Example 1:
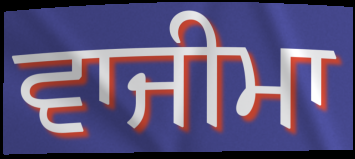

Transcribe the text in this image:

ਵਾਜੀਮਾ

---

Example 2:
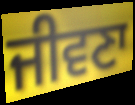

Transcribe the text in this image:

ਜੀਵਣਾ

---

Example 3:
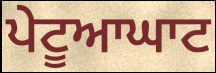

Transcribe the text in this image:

ਪੇਟੂਆਘਾਟ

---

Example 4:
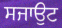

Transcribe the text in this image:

ਸਜਾਉਟ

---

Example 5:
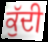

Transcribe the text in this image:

ਕੁੱਦੀ